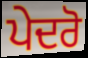
ਪੇਦਰੋ